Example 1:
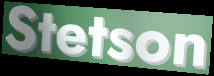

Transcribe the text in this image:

Stetson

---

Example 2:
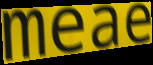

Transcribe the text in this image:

meae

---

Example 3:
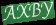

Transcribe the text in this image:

AXBY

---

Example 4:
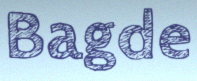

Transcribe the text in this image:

Bagde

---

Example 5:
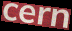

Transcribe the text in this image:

cern